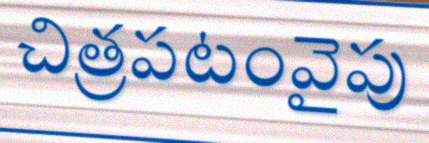
చిత్రపటంవైపు